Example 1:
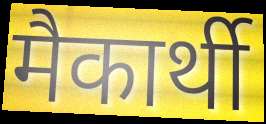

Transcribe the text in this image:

मैकार्थी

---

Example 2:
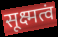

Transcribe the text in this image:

सूक्ष्मत्वं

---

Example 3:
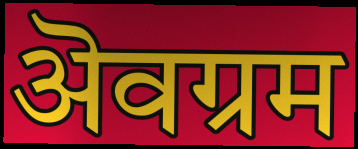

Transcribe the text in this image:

ऄवग्रम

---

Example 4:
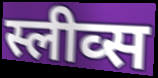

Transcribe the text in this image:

स्लीव्स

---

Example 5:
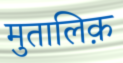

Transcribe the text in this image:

मुतालिक़